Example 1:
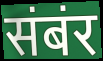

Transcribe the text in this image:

संबंर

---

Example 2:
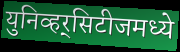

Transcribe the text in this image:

युनिव्हर्सिटीजमध्ये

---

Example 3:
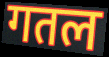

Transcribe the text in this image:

गतल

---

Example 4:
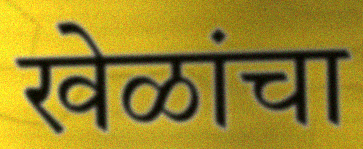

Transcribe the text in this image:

खेळांचा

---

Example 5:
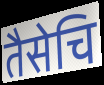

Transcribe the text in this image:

तैसेचि